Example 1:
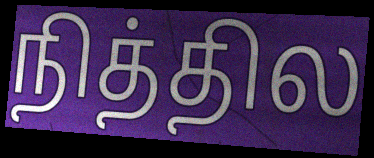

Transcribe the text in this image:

நித்தில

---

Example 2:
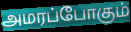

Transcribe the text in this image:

அமரப்போகும்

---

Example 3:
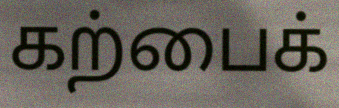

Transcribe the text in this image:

கற்பைக்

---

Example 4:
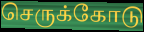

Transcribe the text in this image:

செருக்கோடு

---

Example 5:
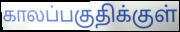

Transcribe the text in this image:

காலப்பகுதிக்குள்